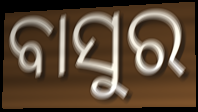
ବାସୁର